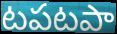
టపటపా